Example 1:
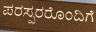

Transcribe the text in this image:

ಪರಸ್ಪರರೊಂದಿಗೆ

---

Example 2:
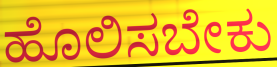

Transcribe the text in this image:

ಹೊಲಿಸಬೇಕು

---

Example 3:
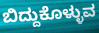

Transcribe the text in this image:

ಬಿದ್ದುಕೊಳ್ಳುವ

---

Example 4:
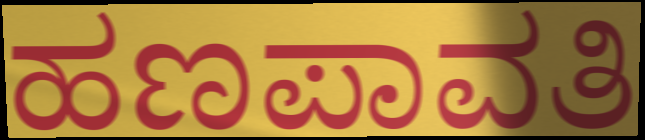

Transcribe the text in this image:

ಹಣಪಾವತಿ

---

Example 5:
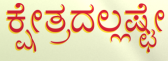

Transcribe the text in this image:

ಕ್ಷೇತ್ರದಲ್ಲಷ್ಟೇ